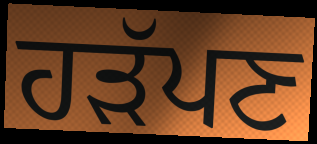
ਹੜੱਪਣ